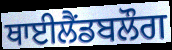
ਥਾਈਲੈਂਡਬਲੌਗ